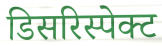
डिसरिस्पेक्ट